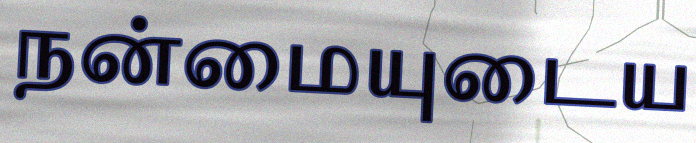
நன்மையுடைய